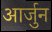
आर्जुन